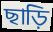
ছাড়ি